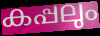
കപ്പലും